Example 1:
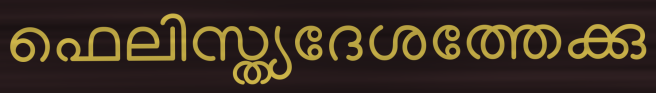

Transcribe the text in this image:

ഫെലിസ്ത്യദേശത്തേക്കു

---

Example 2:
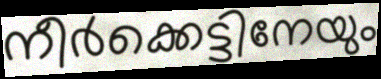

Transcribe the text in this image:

നീർക്കെട്ടിനേയും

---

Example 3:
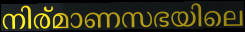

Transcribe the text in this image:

നിര്മാണസഭയിലെ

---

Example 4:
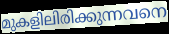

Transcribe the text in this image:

മുകളിലിരിക്കുന്നവനെ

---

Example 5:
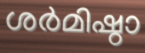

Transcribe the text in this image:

ശർമിഷ്ഠാ